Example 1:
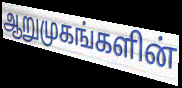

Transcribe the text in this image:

ஆறுமுகங்களின்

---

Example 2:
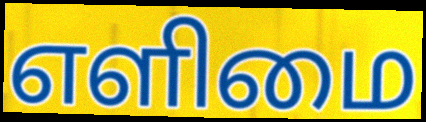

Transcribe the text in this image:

எளிமை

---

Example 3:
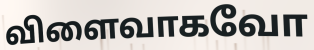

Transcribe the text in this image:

விளைவாகவோ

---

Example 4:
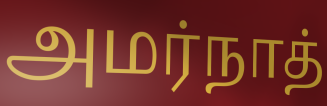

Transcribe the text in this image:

அமர்நாத்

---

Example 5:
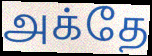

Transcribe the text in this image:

அக்தே